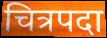
चित्रपदा